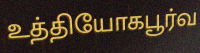
உத்தியோகபூர்வ